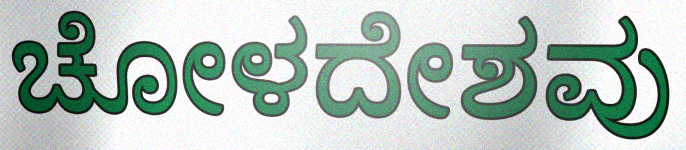
ಚೋಳದೇಶವು